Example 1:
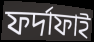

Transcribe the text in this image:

ফর্দাফাই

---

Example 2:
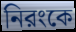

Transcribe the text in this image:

নিরংকে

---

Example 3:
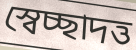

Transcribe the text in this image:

স্বেচ্ছাদত্ত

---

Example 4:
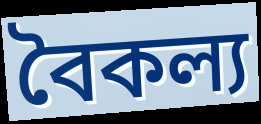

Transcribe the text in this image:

বৈকল্য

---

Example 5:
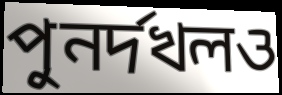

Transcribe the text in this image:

পুনর্দখলও